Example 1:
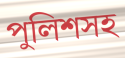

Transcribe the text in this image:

পুলিশসহ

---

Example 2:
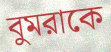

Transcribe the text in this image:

বুমরাকে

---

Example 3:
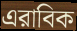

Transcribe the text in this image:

এরাবিক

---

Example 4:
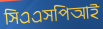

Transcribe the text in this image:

সিএএসপিআই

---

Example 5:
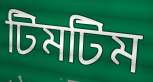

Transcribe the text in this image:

টিমটিম